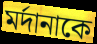
মর্দানাকে